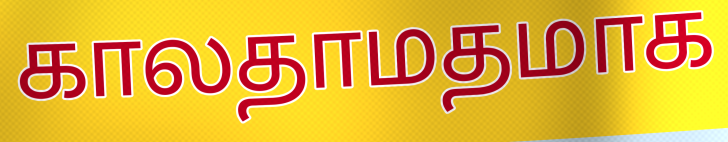
காலதாமதமாக